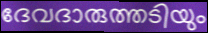
ദേവദാരുത്തടിയും